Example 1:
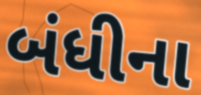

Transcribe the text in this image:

બંધીના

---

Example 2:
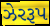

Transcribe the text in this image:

ઝેરરૂપ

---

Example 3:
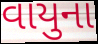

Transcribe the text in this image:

વાયુના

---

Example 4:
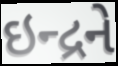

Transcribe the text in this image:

ઇન્દ્રને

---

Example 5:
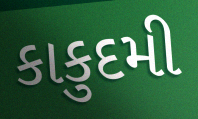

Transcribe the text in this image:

કાકુદમી